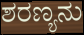
ಶರಣ್ಯನು